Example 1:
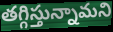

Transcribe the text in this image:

తగ్గిస్తున్నామని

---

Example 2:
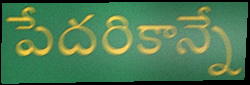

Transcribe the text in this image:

పేదరికాన్నే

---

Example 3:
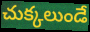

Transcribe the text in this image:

చుక్కలుండే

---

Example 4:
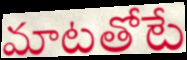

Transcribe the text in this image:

మాటతోటే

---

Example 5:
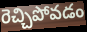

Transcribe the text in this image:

రెచ్చిపోవడం